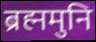
ब्रह्ममुनि